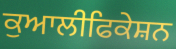
ਕੁਆਲੀਫਿਕੇਸ਼ਨ